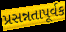
પ્રસન્નતાપૂર્વક